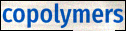
copolymers